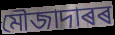
মৌজাদাৰৰ